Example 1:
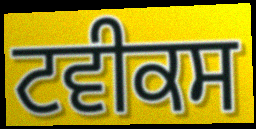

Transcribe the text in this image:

ਟਵੀਕਸ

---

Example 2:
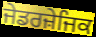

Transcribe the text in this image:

ਜੇਡਰਜ਼ੇਜਿਕ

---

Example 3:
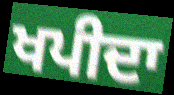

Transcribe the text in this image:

ਖਪੀਦਾ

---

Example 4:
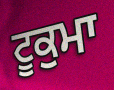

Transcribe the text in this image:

ਟੂਕੁਮਾ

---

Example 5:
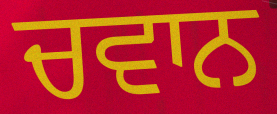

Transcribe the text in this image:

ਚਵਾਨ